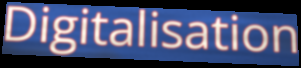
Digitalisation